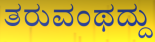
ತರುವಂಥದ್ದು